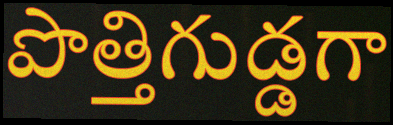
పొత్తిగుడ్డగా